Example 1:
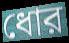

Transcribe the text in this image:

ধোর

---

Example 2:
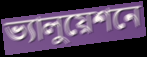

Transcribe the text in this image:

ভ্যালুয়েশনে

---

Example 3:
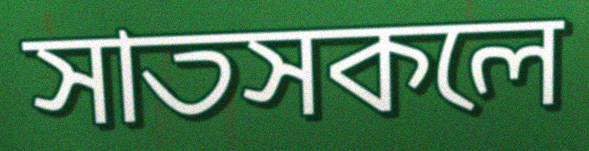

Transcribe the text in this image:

সাতসকলে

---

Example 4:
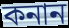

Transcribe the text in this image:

কনান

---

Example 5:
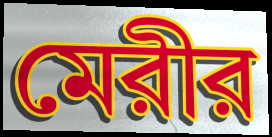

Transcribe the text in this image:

মেরীর